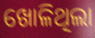
ଖୋଳିଥିଲା